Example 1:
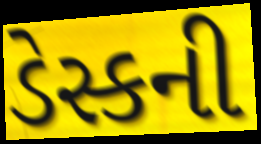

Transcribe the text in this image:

ડેસ્કની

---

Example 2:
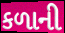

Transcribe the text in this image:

કળાની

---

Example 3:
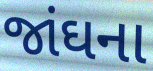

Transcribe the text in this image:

જાંઘના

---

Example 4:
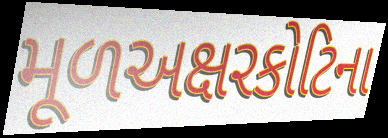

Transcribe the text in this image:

મૂળઅક્ષરકોટિના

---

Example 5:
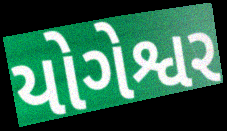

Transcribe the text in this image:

યોગેશ્વર